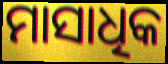
ମାସାଧିକ